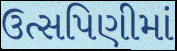
ઉત્સપિણીમાં